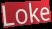
Loke